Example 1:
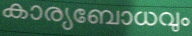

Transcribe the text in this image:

കാര്യബോധവും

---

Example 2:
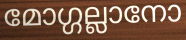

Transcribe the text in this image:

മോഗ്ഗല്ലാനോ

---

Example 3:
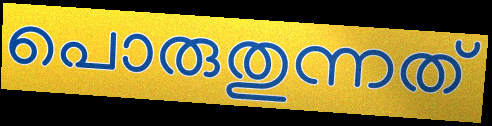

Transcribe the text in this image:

പൊരുതുന്നത്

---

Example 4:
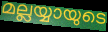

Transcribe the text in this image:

മല്ലയ്യായുടെ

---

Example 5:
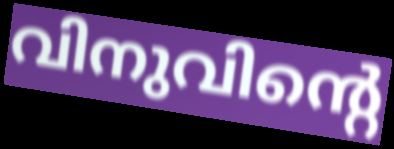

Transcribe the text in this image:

വിനുവിന്റെ